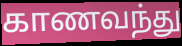
காணவந்து